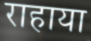
राहाया